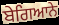
ਬੇਗਿਆਨੇ